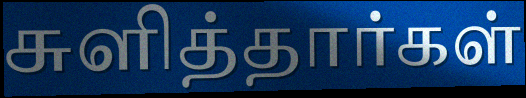
சுளித்தார்கள்